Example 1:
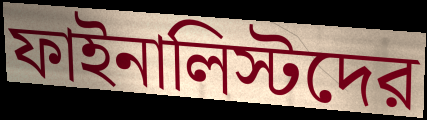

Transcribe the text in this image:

ফাইনালিস্টদের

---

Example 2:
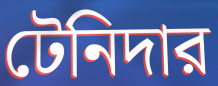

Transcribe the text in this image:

টেনিদার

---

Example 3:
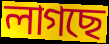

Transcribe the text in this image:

লাগছে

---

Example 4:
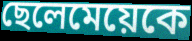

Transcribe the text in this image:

ছেলেমেয়েকে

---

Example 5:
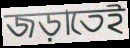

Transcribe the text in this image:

জড়াতেই